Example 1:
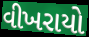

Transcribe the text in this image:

વીખરાયો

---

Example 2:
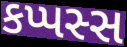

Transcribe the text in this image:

કપ્પસ્સ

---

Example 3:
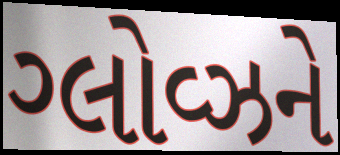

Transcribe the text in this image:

ગ્લોવ્ઝને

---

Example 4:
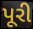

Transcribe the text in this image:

પૂરી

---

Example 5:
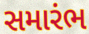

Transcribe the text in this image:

સમારંભ